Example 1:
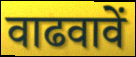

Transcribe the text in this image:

वाढवावें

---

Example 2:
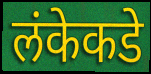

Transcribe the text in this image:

लंकेकडे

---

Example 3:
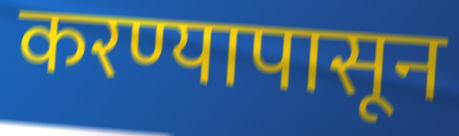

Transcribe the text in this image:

करण्यापासून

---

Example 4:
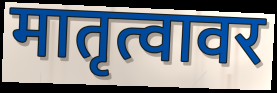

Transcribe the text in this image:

मातृत्वावर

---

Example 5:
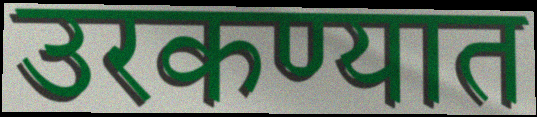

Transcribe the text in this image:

उरकण्यात